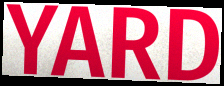
YARD